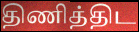
திணித்திட